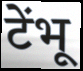
टेंभू